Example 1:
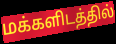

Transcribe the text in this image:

மக்களிடத்தில்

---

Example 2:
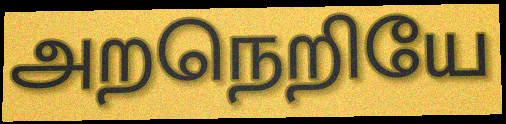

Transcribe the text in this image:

அறநெறியே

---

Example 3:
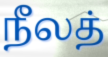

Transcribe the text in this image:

நீலத்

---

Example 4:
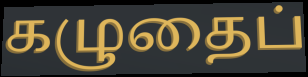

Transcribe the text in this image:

கழுதைப்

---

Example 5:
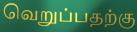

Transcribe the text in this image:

வெறுப்பதற்கு